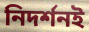
নিদর্শনই